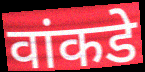
वांकडे